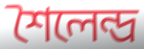
শৈলেন্দ্র